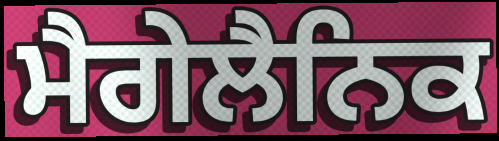
ਮੈਗੇਲੈਨਿਕ